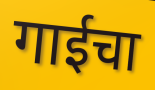
गाईचा